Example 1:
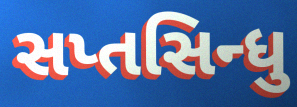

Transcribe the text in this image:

સપ્તસિન્ધુ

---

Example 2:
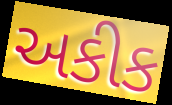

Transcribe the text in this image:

અકીક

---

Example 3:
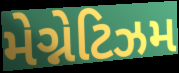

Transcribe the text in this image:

મેગ્નેટિઝમ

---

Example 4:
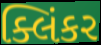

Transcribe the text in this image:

ક્લિંકર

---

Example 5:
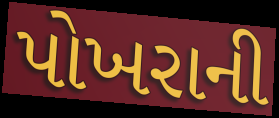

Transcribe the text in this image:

પોખરાની